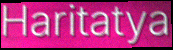
Haritatya